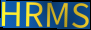
HRMS